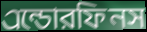
এন্ডোরফিনস